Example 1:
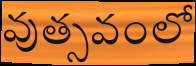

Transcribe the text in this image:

వుత్సవంలో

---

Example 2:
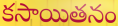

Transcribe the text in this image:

కసాయితనం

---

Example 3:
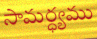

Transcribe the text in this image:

సామర్ధ్యము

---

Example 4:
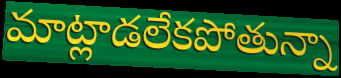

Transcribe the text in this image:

మాట్లాడలేకపోతున్నా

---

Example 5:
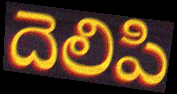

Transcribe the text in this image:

దెలిపి